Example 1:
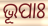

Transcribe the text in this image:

ଭୂପାଃ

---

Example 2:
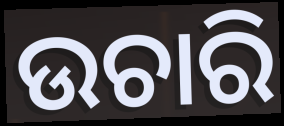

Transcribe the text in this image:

ଉଚାରି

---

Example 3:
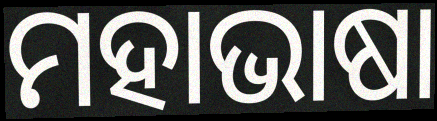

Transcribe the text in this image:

ମହାଭାଷା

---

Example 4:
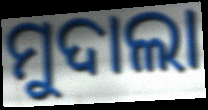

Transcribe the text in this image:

ମୁଦାଲା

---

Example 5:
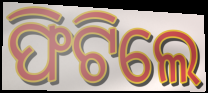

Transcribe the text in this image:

ଫିଟିଲେ